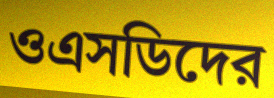
ওএসডিদের